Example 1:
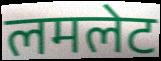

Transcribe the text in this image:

लमलेट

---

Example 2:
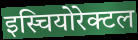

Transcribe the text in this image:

इस्चियोरेक्टल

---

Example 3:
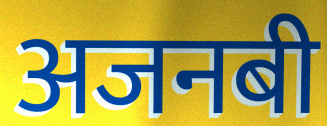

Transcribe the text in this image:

अजनबी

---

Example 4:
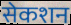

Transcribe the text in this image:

सेकशन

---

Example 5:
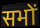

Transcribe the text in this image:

सभों